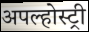
अपल्होस्ट्री